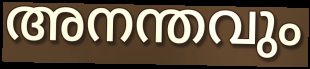
അനന്തവും